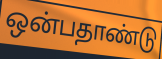
ஒன்பதாண்டு